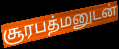
சூரபத்மனுடன்